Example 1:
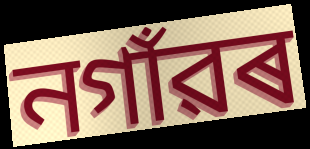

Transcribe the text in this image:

নগাঁৱৰ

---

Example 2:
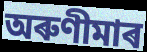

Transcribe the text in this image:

অৰুণীমাৰ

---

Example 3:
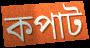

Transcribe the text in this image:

কপাট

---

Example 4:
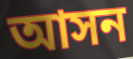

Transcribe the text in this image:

আসন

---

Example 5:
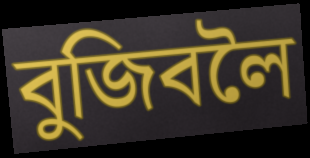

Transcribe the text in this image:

বুজিবলৈ